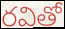
రవితో